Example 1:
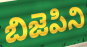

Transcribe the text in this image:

బిజెపిని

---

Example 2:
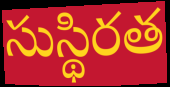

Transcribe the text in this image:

సుస్థిరత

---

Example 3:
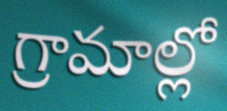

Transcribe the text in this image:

గ్రామాల్లో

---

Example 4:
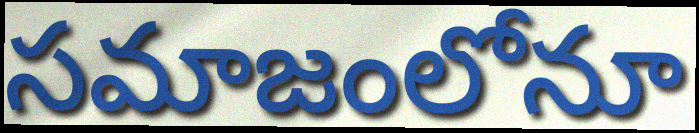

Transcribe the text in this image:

సమాజంలోనూ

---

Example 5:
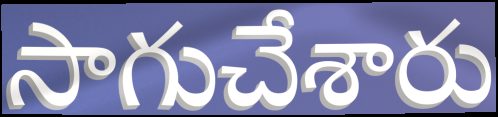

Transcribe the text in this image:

సాగుచేశారు